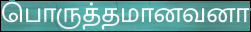
பொருத்தமானவனா